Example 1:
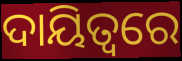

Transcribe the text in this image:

ଦାୟିତ୍ୱରେ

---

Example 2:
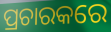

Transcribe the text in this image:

ପ୍ରଚାରକରେ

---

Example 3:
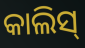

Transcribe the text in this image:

କାଲିସ୍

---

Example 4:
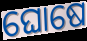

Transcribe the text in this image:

ଘୋଷେ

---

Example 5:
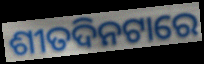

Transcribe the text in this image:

ଶୀତଦିନଟାରେ